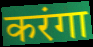
करंगा